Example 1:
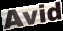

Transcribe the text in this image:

Avid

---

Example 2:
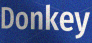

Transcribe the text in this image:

Donkey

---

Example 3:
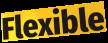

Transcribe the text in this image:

Flexible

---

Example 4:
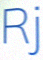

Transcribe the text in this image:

Rj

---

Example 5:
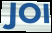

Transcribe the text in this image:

JOI